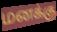
மனக்கு